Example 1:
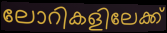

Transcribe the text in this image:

ലോറികളിലേക്ക്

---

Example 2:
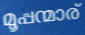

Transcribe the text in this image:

മൂപ്പന്മാര്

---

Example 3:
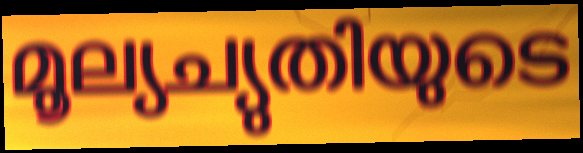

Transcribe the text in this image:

മൂല്യച്യുതിയുടെ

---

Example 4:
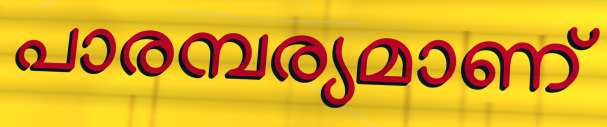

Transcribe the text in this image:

പാരമ്പര്യമാണ്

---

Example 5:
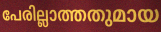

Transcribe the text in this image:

പേരില്ലാത്തതുമായ